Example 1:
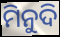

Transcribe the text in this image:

ମିନୁଦି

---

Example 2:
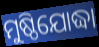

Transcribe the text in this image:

ମୁଷ୍ଠିଯୋଦ୍ଧା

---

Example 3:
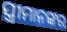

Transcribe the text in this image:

ସ୍ତ୍ରୀମାନଙ୍କର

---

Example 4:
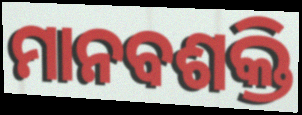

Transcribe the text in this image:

ମାନବଶକ୍ତି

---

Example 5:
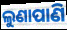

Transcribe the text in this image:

ଲୁଣାପାଣି